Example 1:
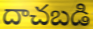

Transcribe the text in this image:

దాచబడి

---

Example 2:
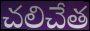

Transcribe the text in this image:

చలిచేత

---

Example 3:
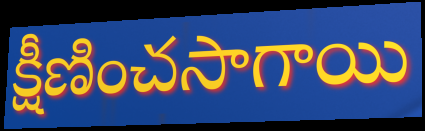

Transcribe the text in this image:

క్షీణించసాగాయి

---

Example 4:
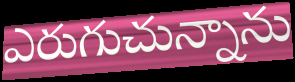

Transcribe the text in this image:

ఎరుగుచున్నాను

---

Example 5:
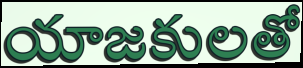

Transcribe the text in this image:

యాజకులతో